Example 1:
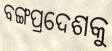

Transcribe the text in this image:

ବଙ୍ଗପ୍ରଦେଶକୁ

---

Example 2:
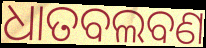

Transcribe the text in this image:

ଧାତବଲବଣ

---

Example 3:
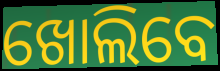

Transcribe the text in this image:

ଖୋଲିବେ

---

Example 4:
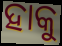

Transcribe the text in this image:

ହାକୁ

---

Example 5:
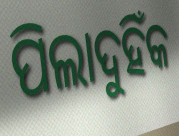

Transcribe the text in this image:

ପିଲାଦୁହିଁକ